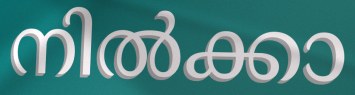
നിൽക്കാ